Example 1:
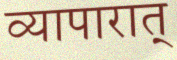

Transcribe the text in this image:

व्यापारात्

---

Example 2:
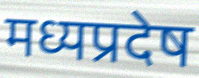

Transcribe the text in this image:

मध्यप्रदेष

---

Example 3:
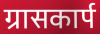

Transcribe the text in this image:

ग्रासकार्प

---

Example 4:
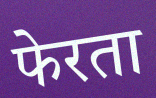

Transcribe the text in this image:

फेरता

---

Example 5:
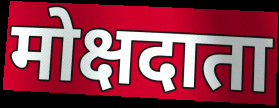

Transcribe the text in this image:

मोक्षदाता